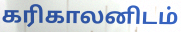
கரிகாலனிடம்